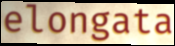
elongata